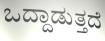
ಒದ್ದಾಡುತ್ತದೆ